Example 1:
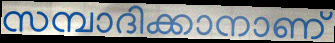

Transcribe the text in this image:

സമ്പാദിക്കാനാണ്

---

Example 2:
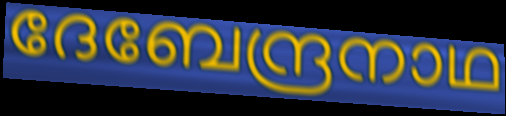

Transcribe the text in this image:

ദേബേന്ദ്രനാഥ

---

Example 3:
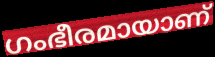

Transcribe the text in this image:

ഗംഭീരമായാണ്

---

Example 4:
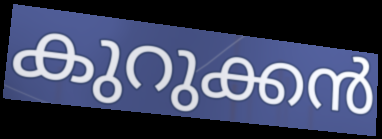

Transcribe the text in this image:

കുറുക്കൻ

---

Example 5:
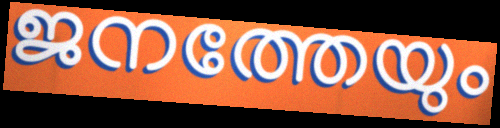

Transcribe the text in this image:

ജനത്തേയും